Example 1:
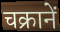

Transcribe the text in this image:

चक्रानें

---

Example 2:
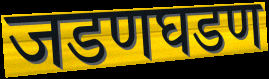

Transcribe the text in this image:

जडणघडण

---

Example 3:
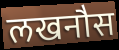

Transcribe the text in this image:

लखनौस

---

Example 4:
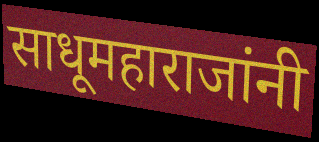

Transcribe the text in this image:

साधूमहाराजांनी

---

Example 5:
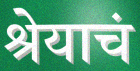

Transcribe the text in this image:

श्रेयाचं